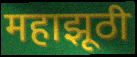
महाझूठी